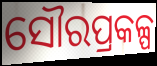
ସୌରପ୍ରକଳ୍ପ